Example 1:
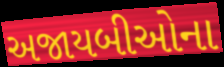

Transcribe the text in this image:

અજાયબીઓના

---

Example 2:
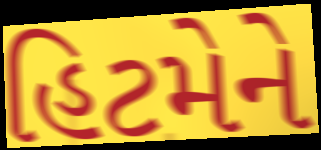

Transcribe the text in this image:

હિટમેને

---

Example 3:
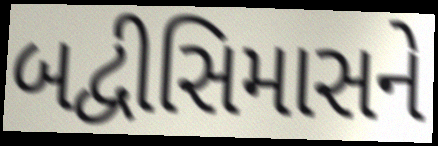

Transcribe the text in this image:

બદ્વીસિમાસને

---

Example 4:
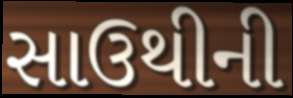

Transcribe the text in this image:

સાઉથીની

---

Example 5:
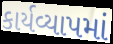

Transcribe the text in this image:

કાર્યવ્યાપમાં